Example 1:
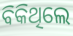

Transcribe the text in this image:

ବିକିଥିଲେ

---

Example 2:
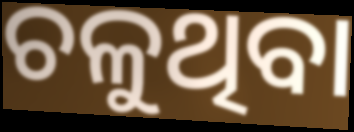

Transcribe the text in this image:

ଚଳୁଥିବା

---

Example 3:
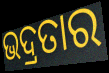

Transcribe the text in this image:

ଭଦ୍ରତାର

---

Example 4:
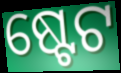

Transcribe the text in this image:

ଷ୍ଟେଟ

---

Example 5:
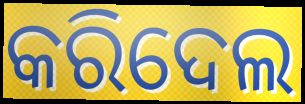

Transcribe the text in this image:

କରିଦେଲ